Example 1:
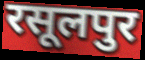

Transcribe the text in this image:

रसूलपुर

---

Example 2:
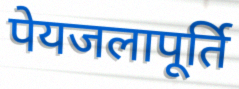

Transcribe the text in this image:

पेयजलापूर्ति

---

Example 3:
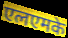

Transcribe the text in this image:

एलएमके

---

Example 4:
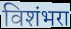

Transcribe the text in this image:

विशंभरा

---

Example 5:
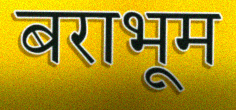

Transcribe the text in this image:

बराभूम